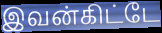
இவன்கிட்டே